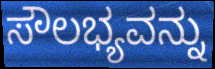
ಸೌಲಭ್ಯವನ್ನು